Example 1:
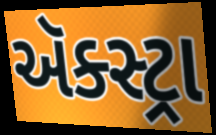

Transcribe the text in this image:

ઍક્સ્ટ્રા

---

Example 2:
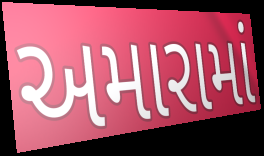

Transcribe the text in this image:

અમારામાં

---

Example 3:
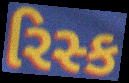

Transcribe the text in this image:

રિસ્ક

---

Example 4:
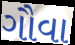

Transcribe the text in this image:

ગૌવા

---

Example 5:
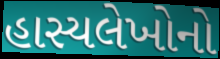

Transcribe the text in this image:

હાસ્યલેખોનો